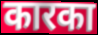
कारका